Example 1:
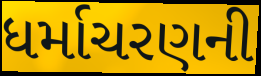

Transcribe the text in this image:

ધર્માચરણની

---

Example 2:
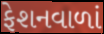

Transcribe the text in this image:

ફેશનવાળાં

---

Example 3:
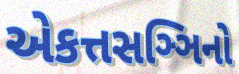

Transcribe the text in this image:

એકત્તસઞ્ઞિનો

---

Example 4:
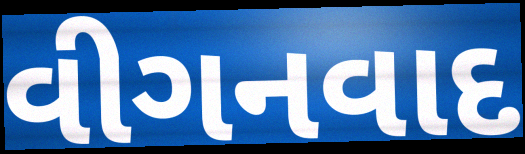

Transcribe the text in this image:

વીગનવાદ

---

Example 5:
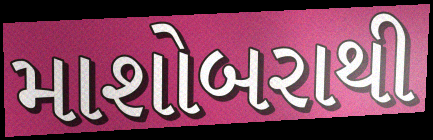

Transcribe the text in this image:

માશોબરાથી